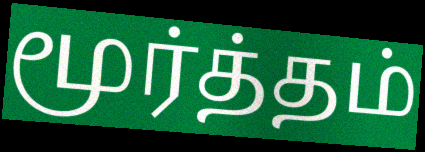
மூர்த்தம்